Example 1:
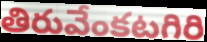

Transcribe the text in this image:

తిరువేంకటగిరి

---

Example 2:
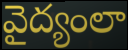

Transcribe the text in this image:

వైద్యంలా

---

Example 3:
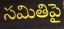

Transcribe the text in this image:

సమితిపై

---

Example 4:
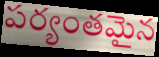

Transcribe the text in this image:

పర్యంతమైన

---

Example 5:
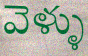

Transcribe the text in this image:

వెళ్ళు